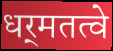
धर्मतत्वे